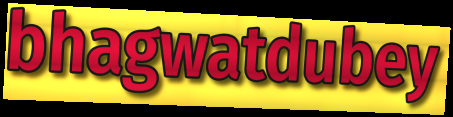
bhagwatdubey